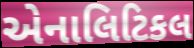
એનાલિટિકલ